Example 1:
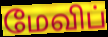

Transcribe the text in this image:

மேவிப்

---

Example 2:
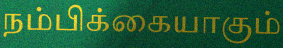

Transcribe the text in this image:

நம்பிக்கையாகும்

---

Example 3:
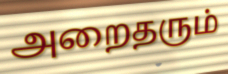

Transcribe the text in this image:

அறைதரும்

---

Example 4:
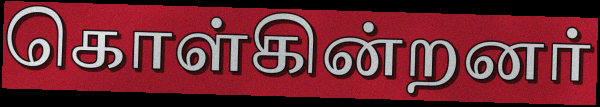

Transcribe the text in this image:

கொள்கின்றனர்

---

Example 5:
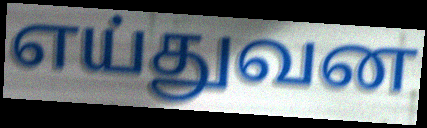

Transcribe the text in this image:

எய்துவன